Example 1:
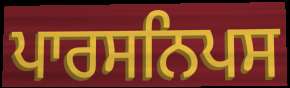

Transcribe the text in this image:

ਪਾਰਸਨਿਪਸ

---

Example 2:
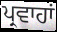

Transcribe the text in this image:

ਪ੍ਰਵਾਹਾਂ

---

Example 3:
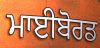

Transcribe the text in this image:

ਮਾਈਬੋਰਡ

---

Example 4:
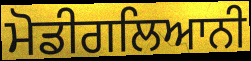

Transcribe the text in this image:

ਮੋਡੀਗਲਿਆਨੀ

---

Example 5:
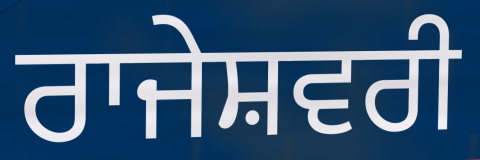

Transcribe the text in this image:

ਰਾਜੇਸ਼ਵਰੀ